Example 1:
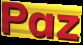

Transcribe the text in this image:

Paz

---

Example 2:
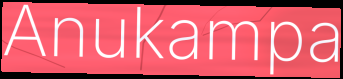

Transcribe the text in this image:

Anukampa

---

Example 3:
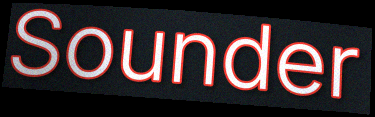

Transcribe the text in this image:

Sounder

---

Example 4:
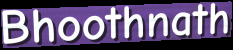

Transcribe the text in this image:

Bhoothnath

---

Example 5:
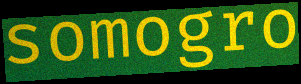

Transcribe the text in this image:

somogro